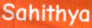
Sahithya